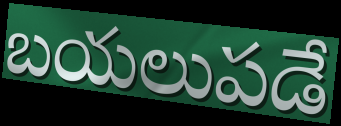
బయలుపడే